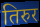
तिरुर